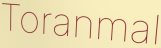
Toranmal